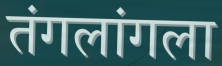
तंगलांगला